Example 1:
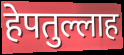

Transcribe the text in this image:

हेपतुल्लाह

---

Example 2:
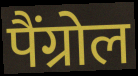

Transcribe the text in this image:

पैंग्रोल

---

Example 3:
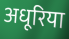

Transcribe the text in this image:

अधूरिया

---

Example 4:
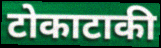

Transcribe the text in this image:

टोकाटाकी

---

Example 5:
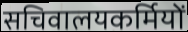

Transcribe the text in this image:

सचिवालयकर्मियों